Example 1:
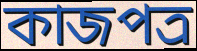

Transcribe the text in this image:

কাজপত্র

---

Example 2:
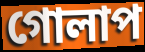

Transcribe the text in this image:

গোলাপ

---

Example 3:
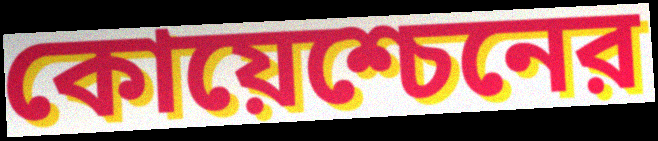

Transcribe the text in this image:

কোয়েশ্চেনের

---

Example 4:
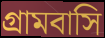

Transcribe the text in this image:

গ্রামবাসি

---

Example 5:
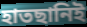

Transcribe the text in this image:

হাতছানিই